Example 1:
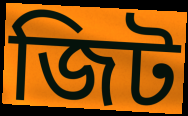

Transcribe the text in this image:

জিট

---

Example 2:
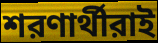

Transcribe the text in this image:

শরণার্থীরাই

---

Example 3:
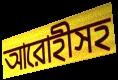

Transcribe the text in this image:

আরোহীসহ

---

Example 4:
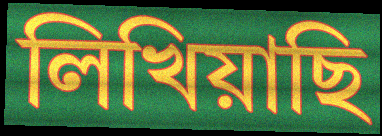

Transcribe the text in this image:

লিখিয়াছি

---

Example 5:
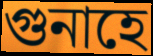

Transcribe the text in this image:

গুনাহে